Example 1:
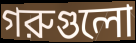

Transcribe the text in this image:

গরুগুলো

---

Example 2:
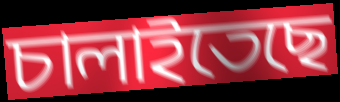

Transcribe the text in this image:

চালাইতেছে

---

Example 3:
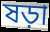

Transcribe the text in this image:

ষড়া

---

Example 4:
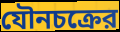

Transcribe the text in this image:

যৌনচক্রের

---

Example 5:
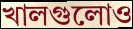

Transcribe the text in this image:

খালগুলোও